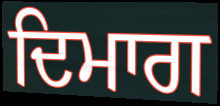
ਦਿਮਾਗ